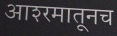
आश्रमातूनच